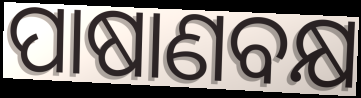
ପାଷାଣବକ୍ଷ